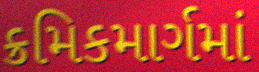
ક્રમિકમાર્ગમાં